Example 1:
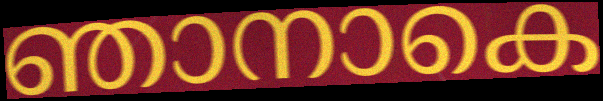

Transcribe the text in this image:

ഞാനാകെ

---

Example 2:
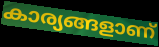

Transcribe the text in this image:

കാര്യങ്ങളാണ്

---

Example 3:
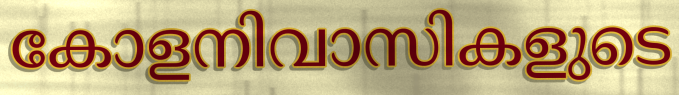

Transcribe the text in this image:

കോളനിവാസികളുടെ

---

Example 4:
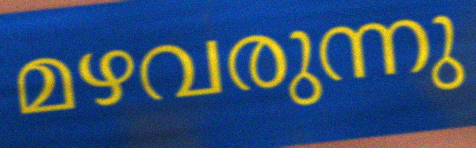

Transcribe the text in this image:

മഴവരുന്നു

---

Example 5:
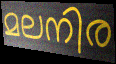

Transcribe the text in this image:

മലനിര